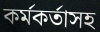
কর্মকর্তাসহ